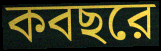
কবছরে